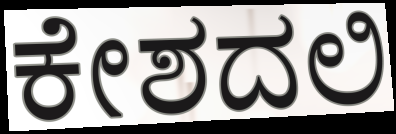
ಕೇಶದಲಿ